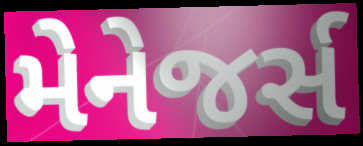
મેનેજર્સ